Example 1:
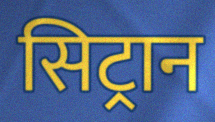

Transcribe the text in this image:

सिट्रान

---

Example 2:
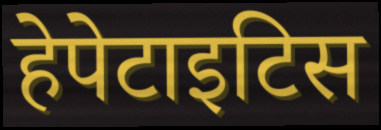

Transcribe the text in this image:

हेपेटाइटिस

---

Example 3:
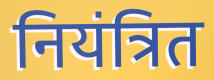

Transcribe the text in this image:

नियंत्रित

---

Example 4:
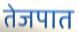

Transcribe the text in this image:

तेजपात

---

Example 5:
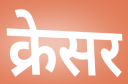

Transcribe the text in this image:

क्रेसर